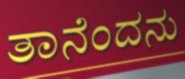
ತಾನೆಂದನು